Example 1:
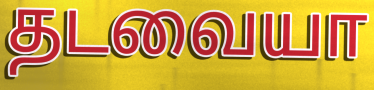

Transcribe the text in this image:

தடவையா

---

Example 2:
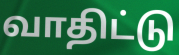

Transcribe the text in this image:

வாதிட்டு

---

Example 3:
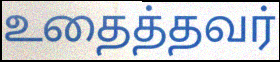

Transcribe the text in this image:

உதைத்தவர்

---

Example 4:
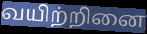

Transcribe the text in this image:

வயிற்றினை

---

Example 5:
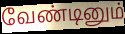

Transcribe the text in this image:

வேண்டினும்